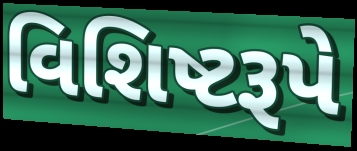
વિશિષ્ટરૂપે